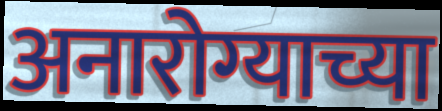
अनारोग्याच्या